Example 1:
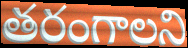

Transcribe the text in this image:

తరంగాలని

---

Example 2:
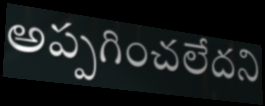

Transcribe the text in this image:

అప్పగించలేదని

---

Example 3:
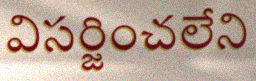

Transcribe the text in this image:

విసర్జించలేని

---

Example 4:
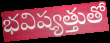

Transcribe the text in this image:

భవిష్యత్తుతో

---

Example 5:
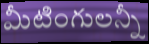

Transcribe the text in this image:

మీటింగులన్నీ